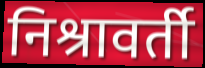
निश्रावर्ती